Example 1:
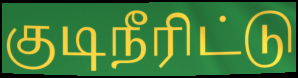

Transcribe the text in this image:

குடிநீரிட்டு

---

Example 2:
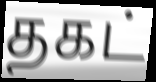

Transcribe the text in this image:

தகட்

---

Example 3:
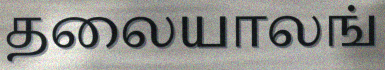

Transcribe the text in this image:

தலையாலங்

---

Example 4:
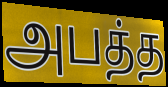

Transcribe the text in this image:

அபத்த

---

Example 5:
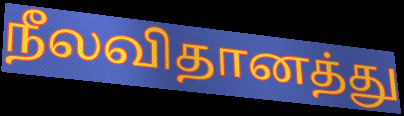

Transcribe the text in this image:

நீலவிதானத்து